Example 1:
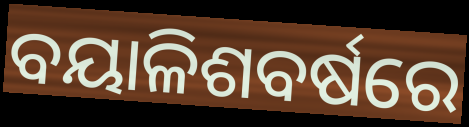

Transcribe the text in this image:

ବୟାଳିଶବର୍ଷରେ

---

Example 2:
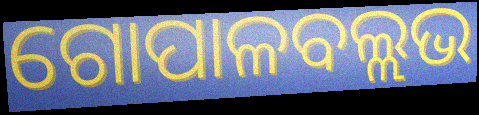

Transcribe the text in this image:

ଗୋପାଳବଲ୍ଲଭ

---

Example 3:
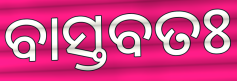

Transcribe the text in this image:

ବାସ୍ତବତଃ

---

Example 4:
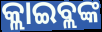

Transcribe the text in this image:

କ୍ଲାଇବ୍ଲଙ୍କ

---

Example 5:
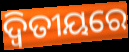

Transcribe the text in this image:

ଦ୍ଵିତୀୟରେ